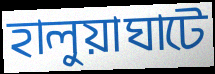
হালুয়াঘাটে